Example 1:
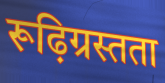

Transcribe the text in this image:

रूढ़िग्रस्तता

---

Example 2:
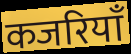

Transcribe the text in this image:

कजरियाँ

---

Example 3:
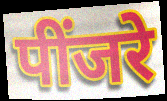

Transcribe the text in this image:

पींजरे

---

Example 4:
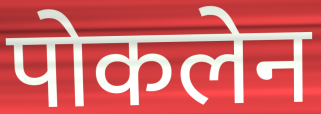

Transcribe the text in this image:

पोकलेन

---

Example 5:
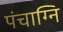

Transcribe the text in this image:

पंचाग्नि